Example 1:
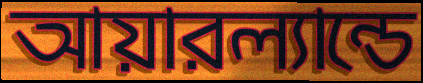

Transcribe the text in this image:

আয়ারল্যান্ডে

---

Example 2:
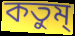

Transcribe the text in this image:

কতুম্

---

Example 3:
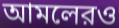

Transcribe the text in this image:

আমলেরও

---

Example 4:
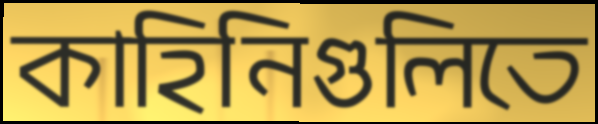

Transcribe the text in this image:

কাহিনিগুলিতে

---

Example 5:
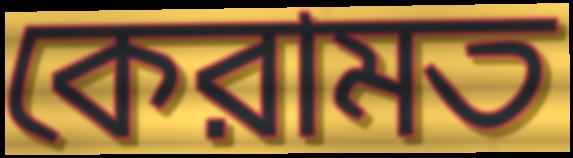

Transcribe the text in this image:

কেরামত